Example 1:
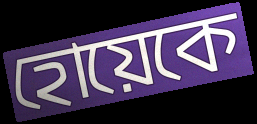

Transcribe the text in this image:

হোয়েকে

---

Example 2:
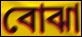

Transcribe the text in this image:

বোঝা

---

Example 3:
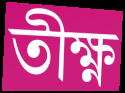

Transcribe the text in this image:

তীক্ষ্ণ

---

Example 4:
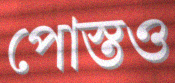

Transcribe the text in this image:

পোস্তও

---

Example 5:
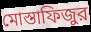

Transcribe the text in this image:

মোস্তাফিজুর